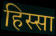
हिस्सा